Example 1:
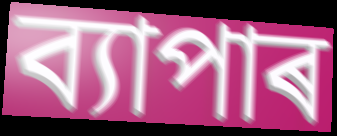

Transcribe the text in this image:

ব্যাপাৰ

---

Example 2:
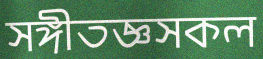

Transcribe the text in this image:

সঙ্গীতজ্ঞসকল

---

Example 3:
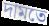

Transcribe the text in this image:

দামতে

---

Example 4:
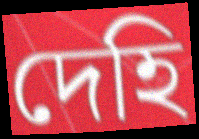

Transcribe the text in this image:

দেহি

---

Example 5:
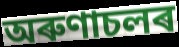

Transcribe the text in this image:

অৰুণাচলৰ